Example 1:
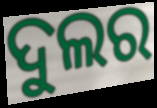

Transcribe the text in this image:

ଦୁଲର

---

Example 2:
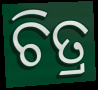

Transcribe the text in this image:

ଚିତ୍ର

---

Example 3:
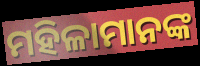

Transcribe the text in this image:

ମହିଳାମାନଙ୍କ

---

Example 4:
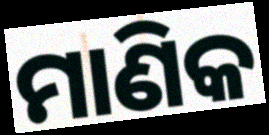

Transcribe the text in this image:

ମାଣିକ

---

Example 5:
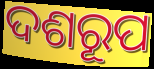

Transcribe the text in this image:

ଦଶରୂପ